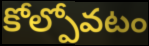
కోల్పోవటం